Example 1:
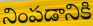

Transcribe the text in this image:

నింపడానికి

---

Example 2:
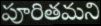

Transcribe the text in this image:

పూరితమని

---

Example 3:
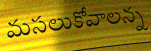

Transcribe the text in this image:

మసలుకోవాలన్న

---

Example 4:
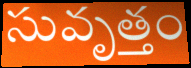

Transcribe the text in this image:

సువృత్తం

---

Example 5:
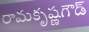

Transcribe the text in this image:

రామకృష్ణగౌడ్